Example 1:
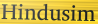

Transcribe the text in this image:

Hindusim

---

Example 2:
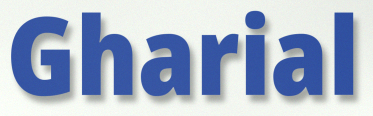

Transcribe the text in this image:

Gharial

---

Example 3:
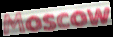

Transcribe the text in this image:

Moscow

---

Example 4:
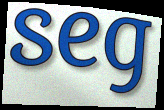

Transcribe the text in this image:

seg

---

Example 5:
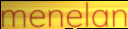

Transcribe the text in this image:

menelan